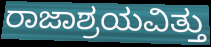
ರಾಜಾಶ್ರಯವಿತ್ತು